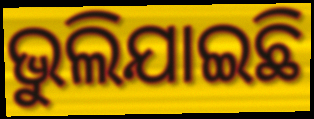
ଭୁଲିଯାଇଛି